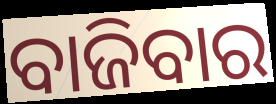
ବାଜିବାର